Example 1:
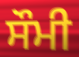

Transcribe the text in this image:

ਸੌਮੀ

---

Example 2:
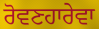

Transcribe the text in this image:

ਰੋਵਣਹਾਰੇਵਾ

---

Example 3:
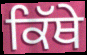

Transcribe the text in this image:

ਕਿੱਥੇ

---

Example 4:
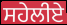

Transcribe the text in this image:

ਸਹੇਲੀਏ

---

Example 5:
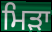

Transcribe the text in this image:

ਮਿੜਾ